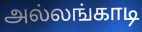
அல்லங்காடி